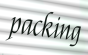
packing